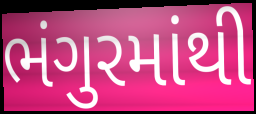
ભંગુરમાંથી